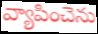
వ్యాపించెను